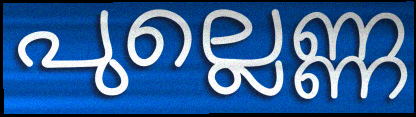
പുല്ലെണ്ണ